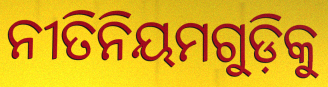
ନୀତିନିୟମଗୁଡ଼ିକୁ